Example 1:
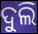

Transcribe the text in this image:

ଦୁଲି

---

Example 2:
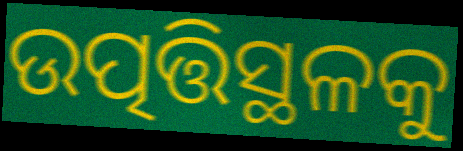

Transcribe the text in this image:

ଉତ୍ପତ୍ତିସ୍ଥଳକୁ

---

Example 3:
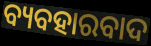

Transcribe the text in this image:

ବ୍ୟବହାରବାଦ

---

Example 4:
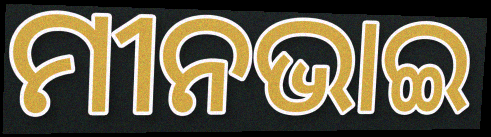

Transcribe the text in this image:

ମୀନଭାଇ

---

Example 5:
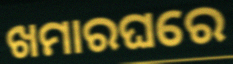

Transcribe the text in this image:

ଖମାରଘରେ